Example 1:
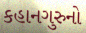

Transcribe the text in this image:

કહાનગુરુનો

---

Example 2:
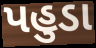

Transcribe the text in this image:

પહુડા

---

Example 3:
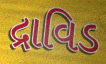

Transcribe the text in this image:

દ્રાવિડ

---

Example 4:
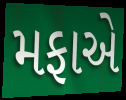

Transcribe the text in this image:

મફાએ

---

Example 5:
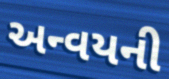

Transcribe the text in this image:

અન્વયની